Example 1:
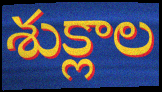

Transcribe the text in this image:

శుక్లాల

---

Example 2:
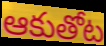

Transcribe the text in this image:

ఆకుతోట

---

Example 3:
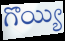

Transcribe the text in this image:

గొయ్యి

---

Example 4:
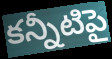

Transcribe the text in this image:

కన్నీటిపై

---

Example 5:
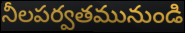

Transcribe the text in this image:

నీలపర్వతమునుండి